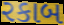
રકાબ